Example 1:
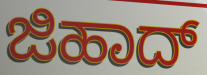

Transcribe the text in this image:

ಜಿಹಾದ್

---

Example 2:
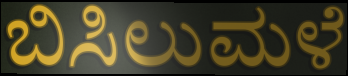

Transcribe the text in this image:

ಬಿಸಿಲುಮಳೆ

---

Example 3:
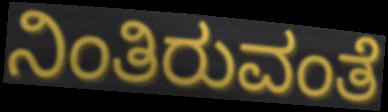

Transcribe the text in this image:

ನಿಂತಿರುವಂತೆ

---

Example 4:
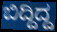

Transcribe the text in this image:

ಬಿದ್ದಿದ್ದ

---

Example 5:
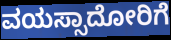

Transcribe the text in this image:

ವಯಸ್ಸಾದೋರಿಗೆ